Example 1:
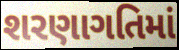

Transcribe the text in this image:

શરણાગતિમાં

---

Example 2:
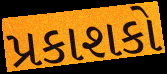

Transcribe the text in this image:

પ્રકાશકો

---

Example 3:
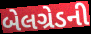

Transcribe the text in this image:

બેલગ્રેડની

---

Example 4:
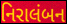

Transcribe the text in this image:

નિરાલંબન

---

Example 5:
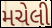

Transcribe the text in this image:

મચેલી